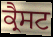
ਕ੍ਰੈਸਟ